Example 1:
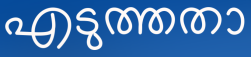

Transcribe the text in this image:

എടുത്തതാ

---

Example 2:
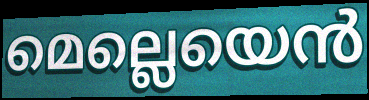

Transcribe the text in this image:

മെല്ലെയെൻ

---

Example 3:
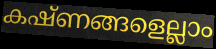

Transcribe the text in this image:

കഷ്ണങ്ങളെല്ലാം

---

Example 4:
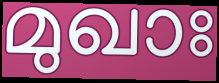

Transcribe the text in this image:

മുഖാഃ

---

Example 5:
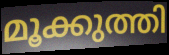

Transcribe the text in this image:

മൂക്കുത്തി